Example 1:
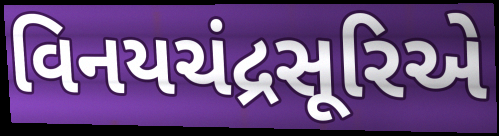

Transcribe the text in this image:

વિનયચંદ્રસૂરિએ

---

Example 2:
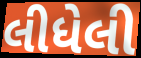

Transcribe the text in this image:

લીધેલી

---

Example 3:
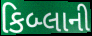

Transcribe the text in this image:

કિબ્લાની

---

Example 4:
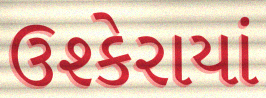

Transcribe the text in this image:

ઉશ્કેરાયાં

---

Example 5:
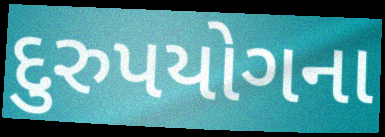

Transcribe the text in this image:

દુરુપયોગના